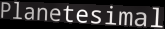
Planetesimal